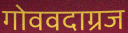
गोववदाग्रज